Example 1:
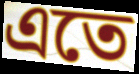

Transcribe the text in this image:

এতে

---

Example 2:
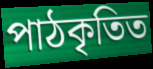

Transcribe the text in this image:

পাঠকৃতিত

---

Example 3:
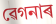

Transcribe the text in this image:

ৱেগনাৰ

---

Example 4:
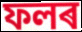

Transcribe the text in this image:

ফলৰ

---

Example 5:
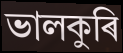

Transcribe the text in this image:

ভালকুৰি